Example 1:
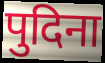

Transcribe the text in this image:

पुदिना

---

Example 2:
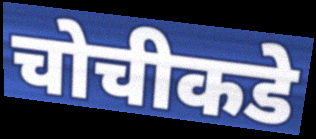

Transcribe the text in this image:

चोचीकडे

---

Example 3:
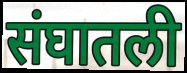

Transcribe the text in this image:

संघातली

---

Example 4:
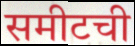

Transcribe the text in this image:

समीटची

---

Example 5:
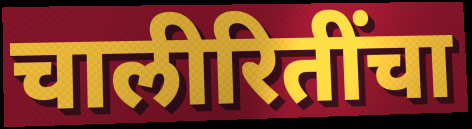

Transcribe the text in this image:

चालीरितींचा